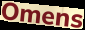
Omens